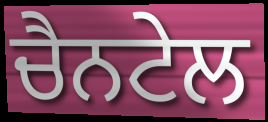
ਚੈਨਟੇਲ